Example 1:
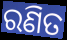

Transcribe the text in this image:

ରଣିତ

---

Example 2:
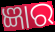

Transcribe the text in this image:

ଜ୍ଞାର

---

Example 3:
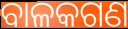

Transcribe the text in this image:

ବାଳକଗଣ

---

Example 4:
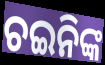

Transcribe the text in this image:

ଚଇନିଙ୍କ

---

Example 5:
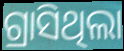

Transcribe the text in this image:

ଗ୍ରାସିଥିଲା